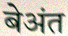
बेअंत